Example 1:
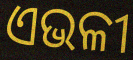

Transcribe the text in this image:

ଏଭଳୀ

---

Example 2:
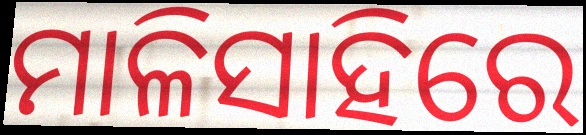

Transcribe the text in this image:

ମାଳିସାହିରେ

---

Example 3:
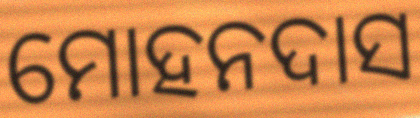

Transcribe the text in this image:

ମୋହନଦାସ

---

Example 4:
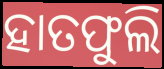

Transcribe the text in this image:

ହାତଫୁଲି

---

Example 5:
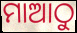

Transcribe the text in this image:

ମାଆଠୁ